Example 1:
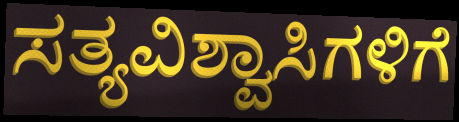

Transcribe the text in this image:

ಸತ್ಯವಿಶ್ವಾಸಿಗಳಿಗೆ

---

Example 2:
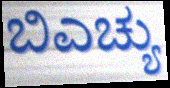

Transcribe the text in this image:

ಬಿಎಚ್ಯು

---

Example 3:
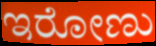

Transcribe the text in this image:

ಇರೋಣು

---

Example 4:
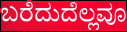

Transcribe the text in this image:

ಬರೆದುದೆಲ್ಲವೂ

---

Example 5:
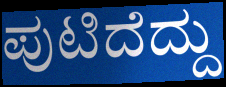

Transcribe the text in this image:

ಪುಟಿದೆದ್ದು